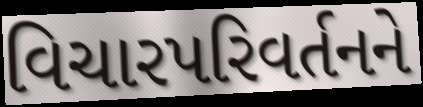
વિચારપરિવર્તનને